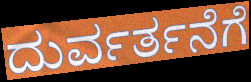
ದುರ್ವರ್ತನೆಗೆ